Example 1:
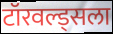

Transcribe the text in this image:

टॉरवल्ड्सला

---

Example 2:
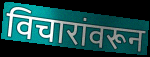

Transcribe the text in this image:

विचारांवरून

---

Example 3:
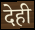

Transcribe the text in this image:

देही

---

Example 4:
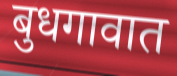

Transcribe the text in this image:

बुधगावात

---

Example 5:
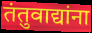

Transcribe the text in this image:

तंतुवाद्यांना